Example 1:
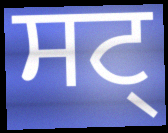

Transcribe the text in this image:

ਸਟ੍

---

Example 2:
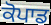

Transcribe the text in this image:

ਕੋਪਾਡ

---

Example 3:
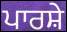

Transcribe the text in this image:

ਪਾਰਸ਼ੇ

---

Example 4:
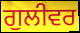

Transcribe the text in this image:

ਗੁਲੀਵਰ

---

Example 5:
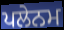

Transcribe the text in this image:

ਪਲੇਨਮ